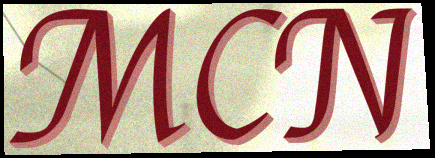
MCN